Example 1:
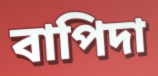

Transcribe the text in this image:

বাপিদা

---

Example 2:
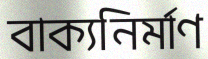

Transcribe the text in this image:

বাক্যনির্মাণ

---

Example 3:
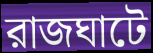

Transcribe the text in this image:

রাজঘাটে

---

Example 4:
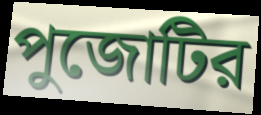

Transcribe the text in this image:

পুজোটির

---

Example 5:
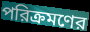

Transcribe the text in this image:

পরিক্রমণের